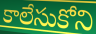
కాలేసుకోని